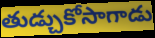
తుడ్చుకోసాగాడు